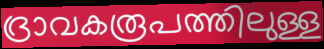
ദ്രാവകരൂപത്തിലുള്ള